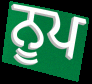
ਨੂਪ